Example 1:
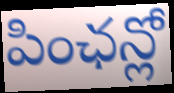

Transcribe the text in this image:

పింఛన్లో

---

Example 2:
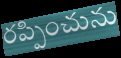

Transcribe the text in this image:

రప్పించును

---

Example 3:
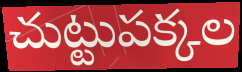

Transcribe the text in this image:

చుట్టుపక్కల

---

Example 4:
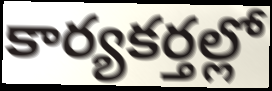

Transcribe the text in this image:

కార్యకర్తల్లో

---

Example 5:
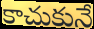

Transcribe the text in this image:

కాచుకునే